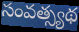
సంవత్స్యథ